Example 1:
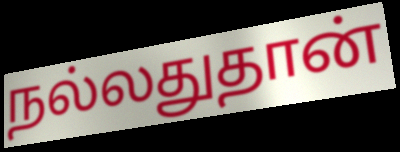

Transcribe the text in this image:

நல்லதுதான்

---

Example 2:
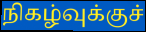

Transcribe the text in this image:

நிகழ்வுக்குச்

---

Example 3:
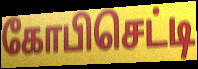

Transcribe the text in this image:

கோபிசெட்டி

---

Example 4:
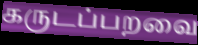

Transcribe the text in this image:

கருடப்பறவை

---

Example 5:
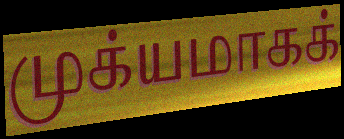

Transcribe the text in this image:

முக்யமாகக்